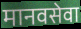
मानवसेवा